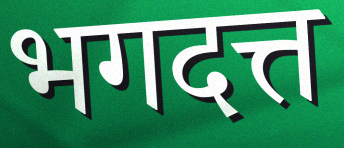
भगदत्त